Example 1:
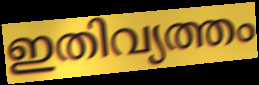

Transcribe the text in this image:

ഇതിവ്യത്തം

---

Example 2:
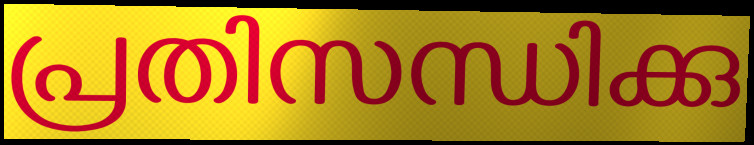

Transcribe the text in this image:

പ്രതിസന്ധിക്കു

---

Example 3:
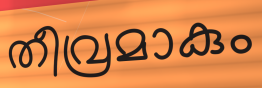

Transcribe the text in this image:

തീവ്രമാകും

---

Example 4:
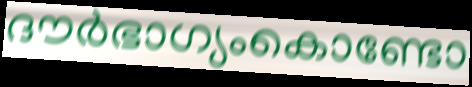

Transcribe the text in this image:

ദൗർഭാഗ്യംകൊണ്ടോ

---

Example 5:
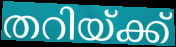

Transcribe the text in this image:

തറിയ്ക്ക്